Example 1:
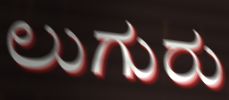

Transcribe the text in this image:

ಲುಗುರು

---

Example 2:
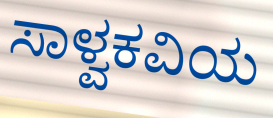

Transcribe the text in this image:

ಸಾಳ್ವಕವಿಯ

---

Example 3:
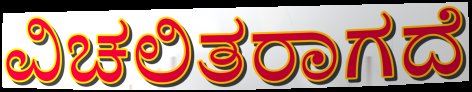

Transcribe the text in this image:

ವಿಚಲಿತರಾಗದೆ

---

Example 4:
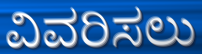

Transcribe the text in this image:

ವಿವರಿಸಲು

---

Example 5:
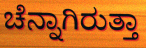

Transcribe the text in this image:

ಚೆನ್ನಾಗಿರುತ್ತಾ